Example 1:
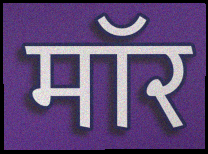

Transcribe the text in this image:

मॉर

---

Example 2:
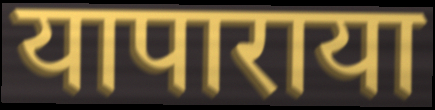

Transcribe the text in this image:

यापाराया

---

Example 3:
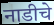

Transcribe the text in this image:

नाडीचे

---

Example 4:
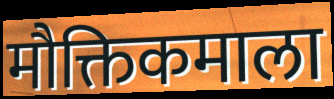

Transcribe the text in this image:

मौक्तिकमाला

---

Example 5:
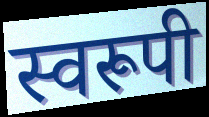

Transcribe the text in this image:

स्वरूपी